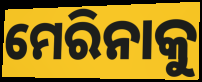
ମେରିନାକୁ